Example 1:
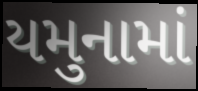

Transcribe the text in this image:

યમુનામાં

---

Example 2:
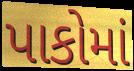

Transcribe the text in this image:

પાકોમાં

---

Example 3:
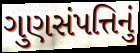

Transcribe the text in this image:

ગુણસંપત્તિનું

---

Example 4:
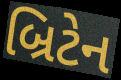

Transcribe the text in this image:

બ્રિટેન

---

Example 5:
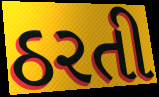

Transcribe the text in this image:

ઠરતી